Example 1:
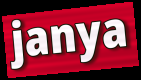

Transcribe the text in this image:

janya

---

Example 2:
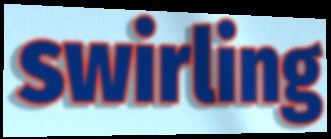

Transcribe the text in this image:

swirling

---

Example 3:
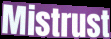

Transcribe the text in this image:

Mistrust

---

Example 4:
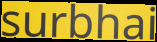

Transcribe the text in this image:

surbhai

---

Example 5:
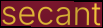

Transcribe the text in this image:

secant